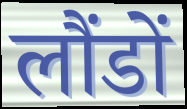
लौंडों